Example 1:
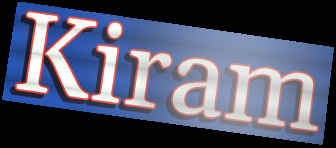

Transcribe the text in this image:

Kiram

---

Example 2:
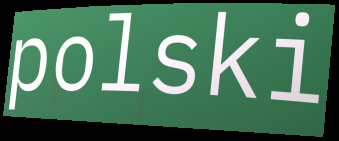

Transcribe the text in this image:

polski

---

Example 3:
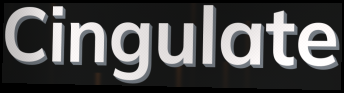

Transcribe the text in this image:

Cingulate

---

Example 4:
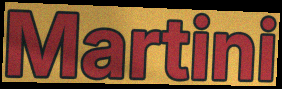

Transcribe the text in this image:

Martini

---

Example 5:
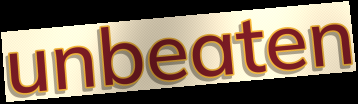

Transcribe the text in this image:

unbeaten